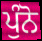
ਪੁੰਨੋ